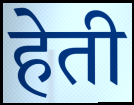
हेती